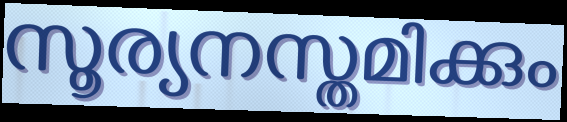
സൂര്യനസ്തമിക്കും